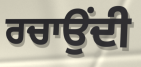
ਰਚਾਉਂਦੀ